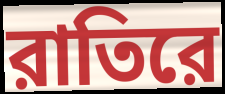
রাতিরে